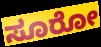
ಸೂರೋ